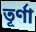
তূর্ণা